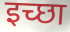
इच्छा